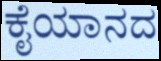
ಕೈಯಾನದ